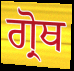
ਗ੍ਰੋਥ